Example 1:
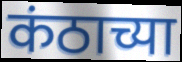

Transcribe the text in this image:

कंठाच्या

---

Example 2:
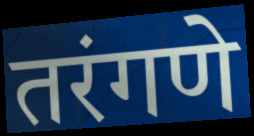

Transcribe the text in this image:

तरंगणे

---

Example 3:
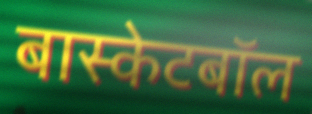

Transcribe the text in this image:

बास्केटबॉल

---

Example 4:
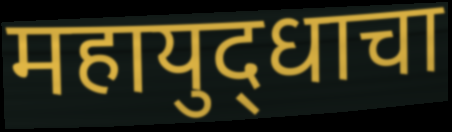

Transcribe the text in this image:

महायुद्धाचा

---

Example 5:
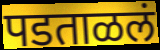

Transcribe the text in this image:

पडताळलं